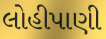
લોહીપાણી